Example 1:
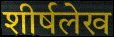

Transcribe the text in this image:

शीर्षलेख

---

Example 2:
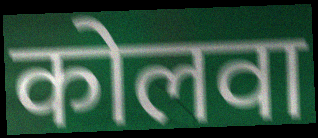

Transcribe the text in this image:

कोलवा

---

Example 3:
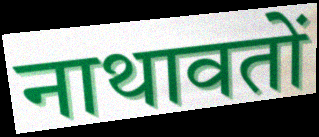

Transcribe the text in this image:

नाथावतों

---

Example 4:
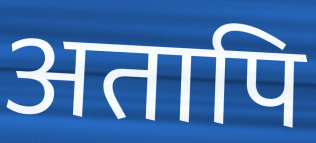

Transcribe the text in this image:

अतापि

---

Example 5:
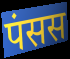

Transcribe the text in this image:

पंसस